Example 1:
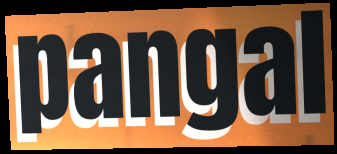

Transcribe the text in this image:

pangal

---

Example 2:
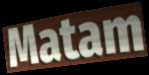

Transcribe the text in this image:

Matam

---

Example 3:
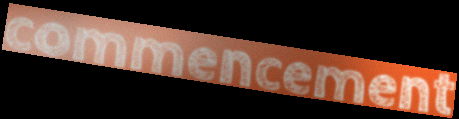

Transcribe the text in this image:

commencement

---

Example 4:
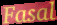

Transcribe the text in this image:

Fasal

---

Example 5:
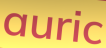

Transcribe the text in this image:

auric